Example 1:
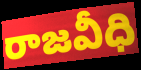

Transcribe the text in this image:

రాజవీధి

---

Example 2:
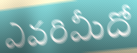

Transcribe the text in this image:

ఎవరిమీదో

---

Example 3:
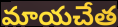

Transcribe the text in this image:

మాయచేత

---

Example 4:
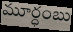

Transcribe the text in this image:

మూర్ధంబు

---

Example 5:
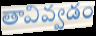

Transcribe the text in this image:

తావివ్వడం